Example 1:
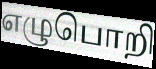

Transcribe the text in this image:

எழுபொறி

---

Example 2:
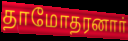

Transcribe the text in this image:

தாமோதரனார்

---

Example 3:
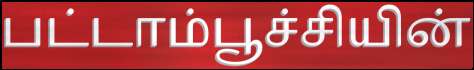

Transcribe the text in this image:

பட்டாம்பூச்சியின்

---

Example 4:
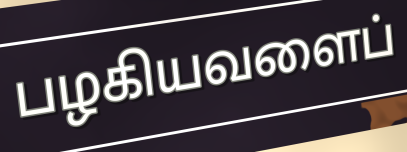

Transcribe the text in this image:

பழகியவளைப்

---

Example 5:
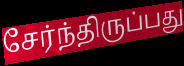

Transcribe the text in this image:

சேர்ந்திருப்பது